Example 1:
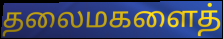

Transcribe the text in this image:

தலைமகளைத்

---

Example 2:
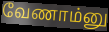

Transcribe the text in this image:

வேணாம்னு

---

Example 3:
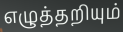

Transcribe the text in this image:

எழுத்தறியும்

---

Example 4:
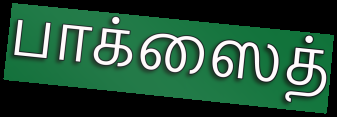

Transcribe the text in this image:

பாக்ஸைத்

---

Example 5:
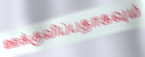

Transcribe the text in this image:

ஊக்குவிப்பதாகவும்